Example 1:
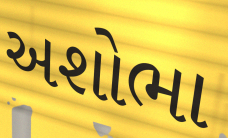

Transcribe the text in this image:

અશોભા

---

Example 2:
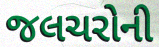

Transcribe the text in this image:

જલચરોની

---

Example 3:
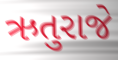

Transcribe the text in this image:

ઋતુરાજે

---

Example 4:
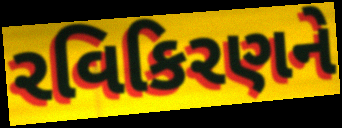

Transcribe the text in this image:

રવિકિરણને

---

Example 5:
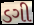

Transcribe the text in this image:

ડગી